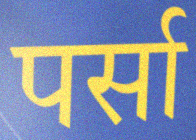
पर्सा